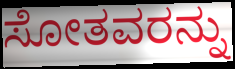
ಸೋತವರನ್ನು